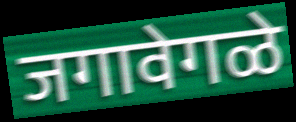
जगावेगळे